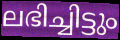
ലഭിച്ചിട്ടും